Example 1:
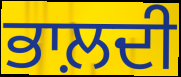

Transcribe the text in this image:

ਭਾਲ਼ਦੀ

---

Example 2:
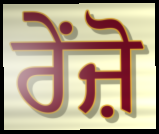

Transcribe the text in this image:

ਰੇਂਜ਼ੋ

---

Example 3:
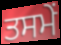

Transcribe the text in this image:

ਤਸਮੇਂ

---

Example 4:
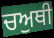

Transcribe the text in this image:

ਚਅੁਥੀ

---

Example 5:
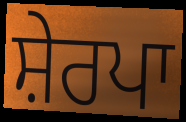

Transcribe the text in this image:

ਸ਼ੇਰਪਾ